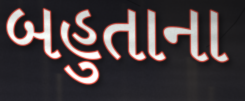
બહુતાના